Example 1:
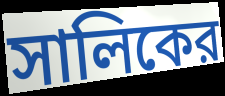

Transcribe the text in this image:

সালিকের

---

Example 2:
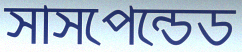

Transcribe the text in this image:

সাসপেন্ডেড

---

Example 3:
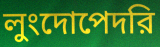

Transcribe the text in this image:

লুংদোপেদরি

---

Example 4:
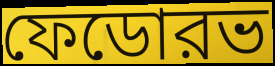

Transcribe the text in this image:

ফেডোরভ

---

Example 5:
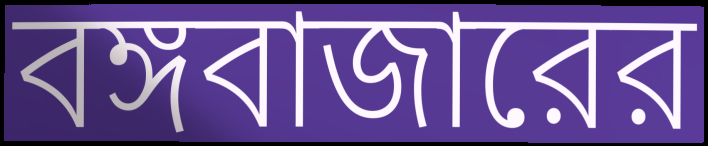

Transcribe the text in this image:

বঙ্গবাজারের